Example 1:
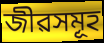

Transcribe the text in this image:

জীৱসমূহ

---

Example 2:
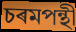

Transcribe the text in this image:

চৰমপন্থী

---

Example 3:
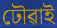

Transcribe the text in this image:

ঢৌৱাই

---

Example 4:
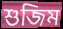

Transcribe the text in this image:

শুজিম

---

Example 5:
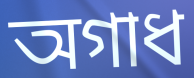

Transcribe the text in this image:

অগাধ